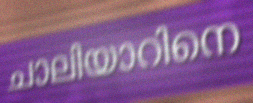
ചാലിയാറിനെ